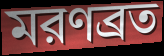
মরণব্রত